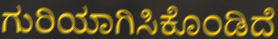
ಗುರಿಯಾಗಿಸಿಕೊಂಡಿದೆ